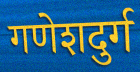
गणेशदुर्ग